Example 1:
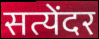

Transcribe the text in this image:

सत्येंदर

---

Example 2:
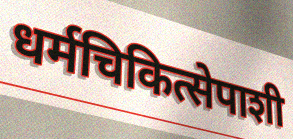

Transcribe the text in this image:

धर्मचिकित्सेपाशी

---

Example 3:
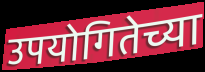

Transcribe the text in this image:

उपयोगितेच्या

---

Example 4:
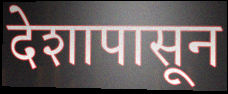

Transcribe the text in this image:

देशापासून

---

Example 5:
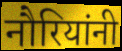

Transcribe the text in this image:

नौरियांनी